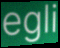
egli